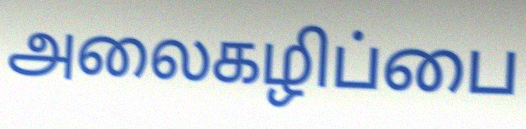
அலைகழிப்பை